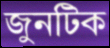
জুনটিক